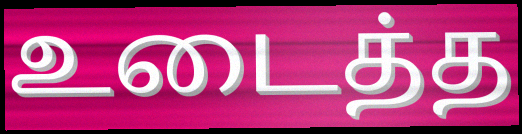
உடைத்த